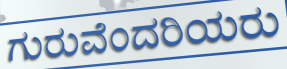
ಗುರುವೆಂದರಿಯರು